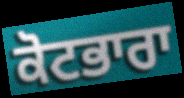
ਕੋਟਭਾਰਾ